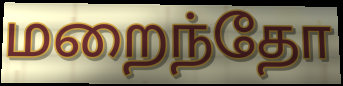
மறைந்தோ